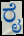
ರೈ